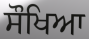
ਸੌਖਿਆ